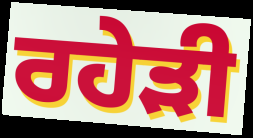
ਰਹੇੜੀ